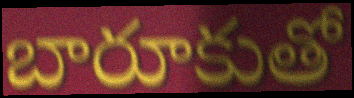
బారూకుతో